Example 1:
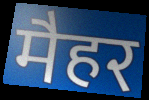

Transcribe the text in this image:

मैहर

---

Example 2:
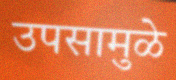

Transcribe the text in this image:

उपसामुळे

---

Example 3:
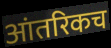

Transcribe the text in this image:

आंतरिकच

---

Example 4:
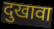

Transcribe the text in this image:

दुखावा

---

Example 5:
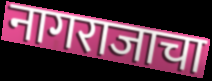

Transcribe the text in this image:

नागराजाचा